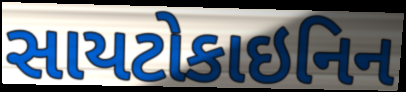
સાયટોકાઇનિન